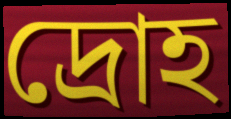
দ্রোহ